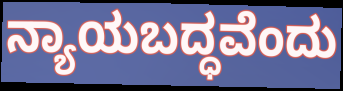
ನ್ಯಾಯಬದ್ಧವೆಂದು